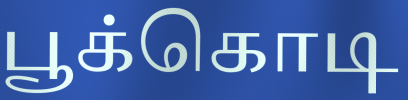
பூக்கொடி